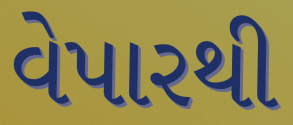
વેપારથી